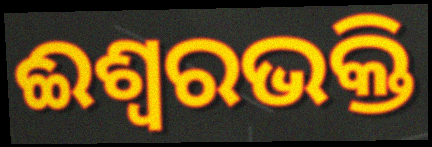
ଈଶ୍ୱରଭକ୍ତି